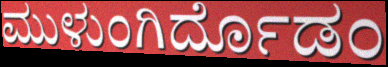
ಮುಳುಂಗಿರ್ದೊಡಂ